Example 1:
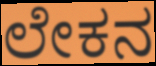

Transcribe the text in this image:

ಲೇಕನ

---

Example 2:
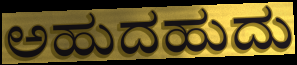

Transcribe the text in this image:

ಅಹುದಹುದು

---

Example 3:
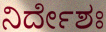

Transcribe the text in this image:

ನಿರ್ದೇಶಃ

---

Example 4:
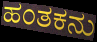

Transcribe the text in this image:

ಹಂತಕನು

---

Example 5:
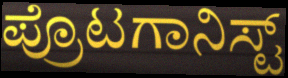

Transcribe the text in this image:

ಪ್ರೊಟಗಾನಿಸ್ಟ್